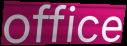
office